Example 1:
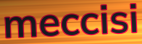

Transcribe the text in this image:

meccisi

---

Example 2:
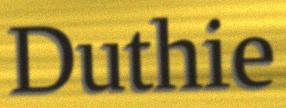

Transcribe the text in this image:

Duthie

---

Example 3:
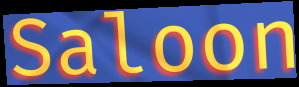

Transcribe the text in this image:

Saloon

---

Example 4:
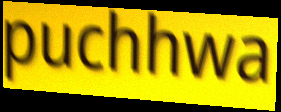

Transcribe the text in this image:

puchhwa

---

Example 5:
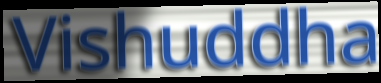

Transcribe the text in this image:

Vishuddha